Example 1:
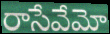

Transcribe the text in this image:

రాసేవేమో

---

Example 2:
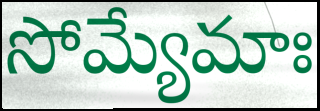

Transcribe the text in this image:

సోమ్యేమాః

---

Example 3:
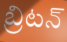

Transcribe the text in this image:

బ్రిటన్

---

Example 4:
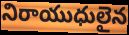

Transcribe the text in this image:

నిరాయుధులైన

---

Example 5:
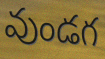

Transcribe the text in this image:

వుండగ